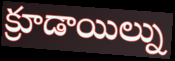
క్రూడాయిల్ను